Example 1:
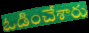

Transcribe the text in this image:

ఓడించేశారు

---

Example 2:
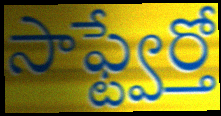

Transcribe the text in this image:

సాఫ్ట్వేర్తో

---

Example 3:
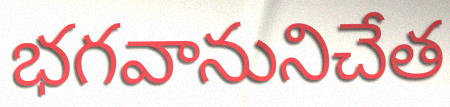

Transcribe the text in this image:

భగవానునిచేత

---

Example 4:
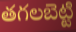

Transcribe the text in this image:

తగలబెట్టి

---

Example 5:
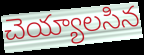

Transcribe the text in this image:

చెయ్యాలసిన